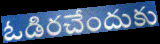
ఓడిరచేందుకు